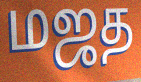
மஜத